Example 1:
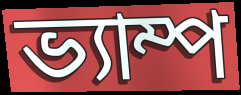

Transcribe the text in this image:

ভ্যাম্প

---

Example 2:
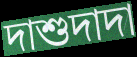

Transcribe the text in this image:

দাশুদাদা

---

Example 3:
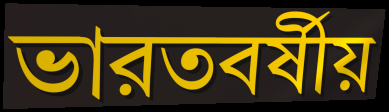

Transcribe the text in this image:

ভারতবর্ষীয়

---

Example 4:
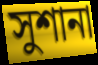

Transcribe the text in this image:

সুশানা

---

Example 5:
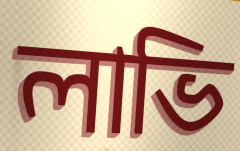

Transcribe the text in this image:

লাভি